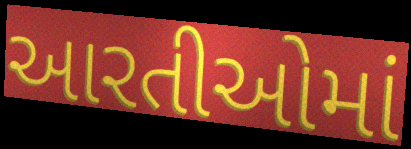
આરતીઓમાં